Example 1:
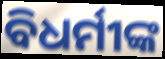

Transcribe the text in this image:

ବିଧର୍ମୀଙ୍କ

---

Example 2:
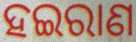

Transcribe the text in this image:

ହଇରାଣ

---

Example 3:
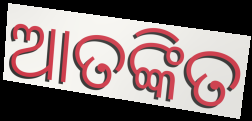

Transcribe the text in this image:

ଆତଙ୍କିତ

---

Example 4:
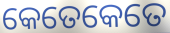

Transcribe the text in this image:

କେତେକେତେ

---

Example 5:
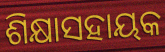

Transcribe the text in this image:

ଶିକ୍ଷାସହାୟକ